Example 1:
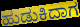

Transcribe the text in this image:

ಹುಡುಕಿದಾಗ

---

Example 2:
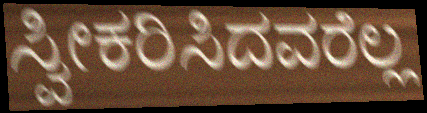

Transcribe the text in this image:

ಸ್ವೀಕರಿಸಿದವರೆಲ್ಲ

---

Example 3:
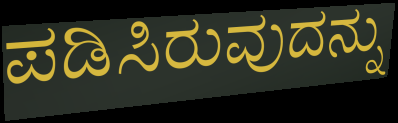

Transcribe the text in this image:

ಪಡಿಸಿರುವುದನ್ನು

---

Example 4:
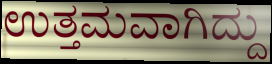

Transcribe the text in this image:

ಉತ್ತಮವಾಗಿದ್ದು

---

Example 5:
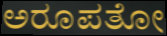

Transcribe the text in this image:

ಅರೂಪತೋ